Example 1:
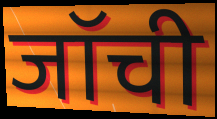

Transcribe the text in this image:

जॉची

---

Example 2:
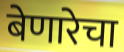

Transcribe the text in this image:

बेणारेचा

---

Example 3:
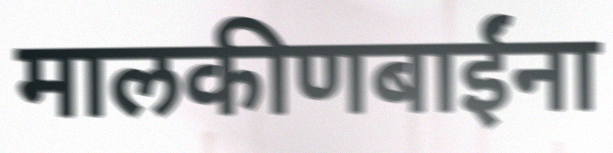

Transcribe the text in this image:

मालकीणबाईंना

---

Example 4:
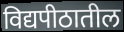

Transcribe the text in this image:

विद्यपीठातील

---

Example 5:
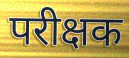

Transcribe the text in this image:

परीक्षक